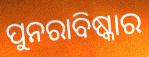
ପୁନରାବିଷ୍କାର